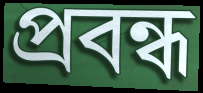
প্রবন্ধ